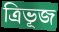
ত্ৰিভূজ